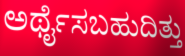
ಅರ್ಥೈಸಬಹುದಿತ್ತು